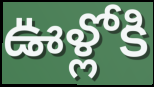
ఊళ్లోకి